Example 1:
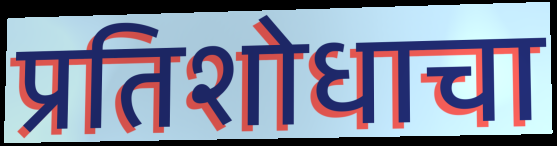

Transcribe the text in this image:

प्रतिशोधाचा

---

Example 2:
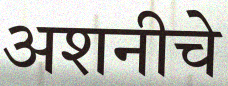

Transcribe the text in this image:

अशनीचे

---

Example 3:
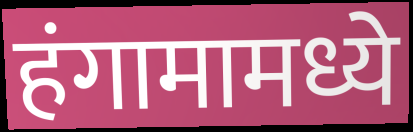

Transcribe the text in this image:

हंगामामध्ये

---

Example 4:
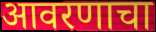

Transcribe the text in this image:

आवरणाचा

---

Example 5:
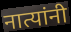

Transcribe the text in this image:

नात्यांनी